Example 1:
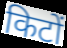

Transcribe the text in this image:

किटों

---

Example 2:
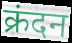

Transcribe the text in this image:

क्रंदन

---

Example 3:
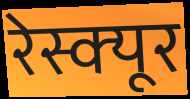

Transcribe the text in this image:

रेस्क्यूर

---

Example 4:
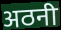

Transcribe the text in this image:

अठनी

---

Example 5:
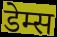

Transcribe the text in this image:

डेम्स